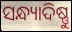
ସନ୍ଧ୍ୟାଦିଷ୍ଣୁ